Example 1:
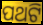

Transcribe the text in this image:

ପଥଟି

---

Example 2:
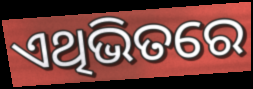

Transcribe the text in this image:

ଏଥିଭିତରେ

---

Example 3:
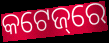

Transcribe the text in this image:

କଟେଜ୍‌ରେ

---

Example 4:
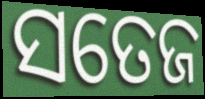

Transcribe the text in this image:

ସତେଜ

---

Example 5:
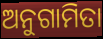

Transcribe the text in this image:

ଅନୁଗାମିତା